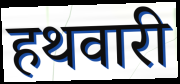
हथवारी